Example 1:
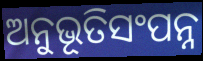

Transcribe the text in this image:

ଅନୁଭୂତିସଂପନ୍ନ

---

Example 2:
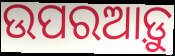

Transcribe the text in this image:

ଉପରଆଡ଼ୁ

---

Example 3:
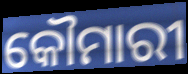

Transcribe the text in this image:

କୌମାରୀ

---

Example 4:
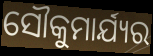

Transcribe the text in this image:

ସୌକୁମାର୍ଯ୍ୟର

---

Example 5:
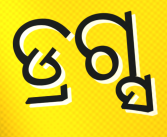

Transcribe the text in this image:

ଡ୍ରଗ୍ସ